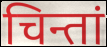
चिन्तां